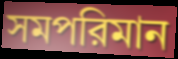
সমপরিমান